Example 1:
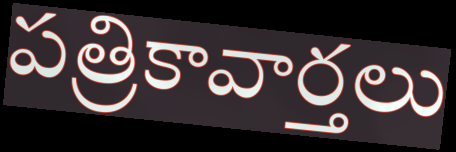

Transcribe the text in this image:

పత్రికావార్తలు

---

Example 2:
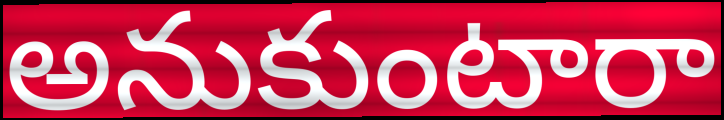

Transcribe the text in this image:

అనుకుంటారా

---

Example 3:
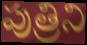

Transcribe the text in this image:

పుత్రిని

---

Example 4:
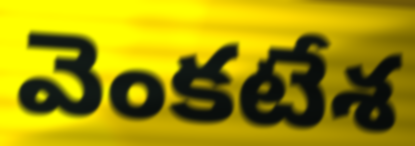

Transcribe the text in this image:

వెంకటేశ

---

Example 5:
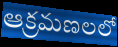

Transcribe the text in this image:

ఆక్రమణలలో